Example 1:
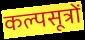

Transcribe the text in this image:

कल्पसूत्रों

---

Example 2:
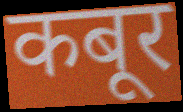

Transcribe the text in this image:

कबूर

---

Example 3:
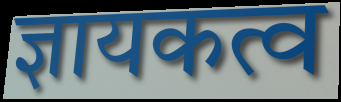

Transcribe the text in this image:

ज्ञायकत्व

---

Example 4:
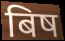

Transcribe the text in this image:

बिष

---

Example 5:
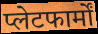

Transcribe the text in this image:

प्लेटफार्मों